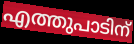
എത്തുപാടിന്